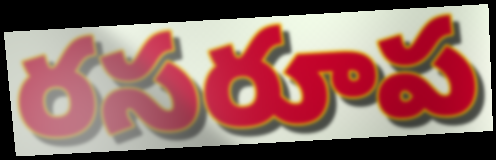
రసరూప